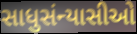
સાધુસંન્યાસીઓ